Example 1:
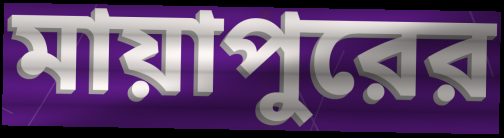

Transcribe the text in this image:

মায়াপুরের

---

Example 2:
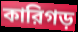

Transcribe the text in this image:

কারিগড়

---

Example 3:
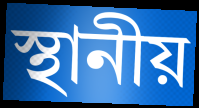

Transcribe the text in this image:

স্থানীয়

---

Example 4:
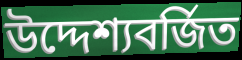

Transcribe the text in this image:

উদ্দেশ্যবর্জিত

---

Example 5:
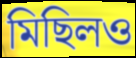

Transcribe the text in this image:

মিছিলও